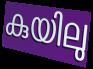
കുയിലു